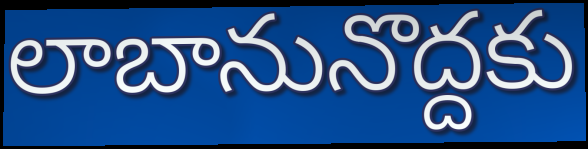
లాబానునొద్దకు